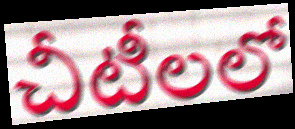
చీటీలలో